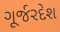
ગૂર્જરદેશ